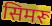
सिमरू